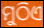
ମୁଠିଏ